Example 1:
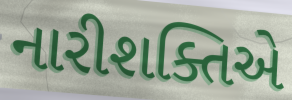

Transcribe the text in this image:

નારીશક્તિએ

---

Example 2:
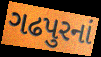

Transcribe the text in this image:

ગઢપુરનાં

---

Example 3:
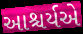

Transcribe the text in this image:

આશ્ચર્યએ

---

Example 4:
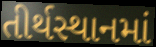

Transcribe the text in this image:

તીર્થસ્થાનમાં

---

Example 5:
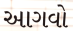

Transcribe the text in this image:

આગવો